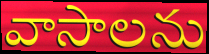
వాసాలను